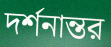
দর্শনান্তর